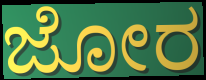
ಜೋರ